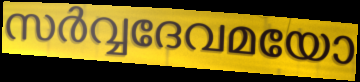
സർവ്വദേവമയോ